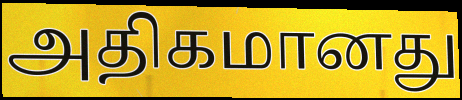
அதிகமானது